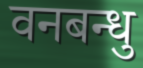
वनबन्धु